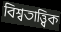
বিশ্বতাত্ত্বিক